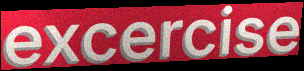
excercise